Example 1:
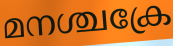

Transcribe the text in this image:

മനശ്ചക്രേ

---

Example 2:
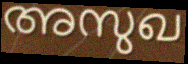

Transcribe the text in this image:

അസുഖ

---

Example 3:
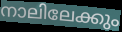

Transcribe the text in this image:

നാലിലേക്കും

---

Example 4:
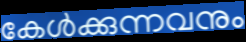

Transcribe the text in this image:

കേൾക്കുന്നവനും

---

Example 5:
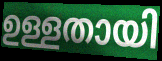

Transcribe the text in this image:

ഉള്ളതായി